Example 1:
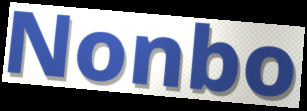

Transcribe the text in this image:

Nonbo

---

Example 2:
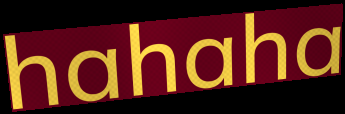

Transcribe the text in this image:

hahaha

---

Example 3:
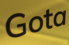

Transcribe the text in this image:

Gota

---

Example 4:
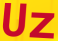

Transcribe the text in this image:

Uz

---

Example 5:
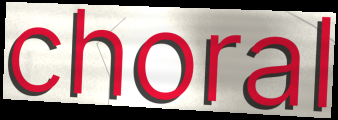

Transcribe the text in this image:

choral